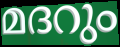
മദറും